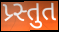
પ્ર્સ્તુત